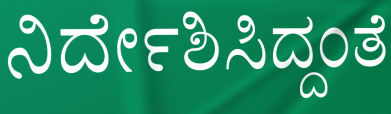
ನಿರ್ದೇಶಿಸಿದ್ದಂತೆ